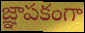
జ్ఞాపకంగా